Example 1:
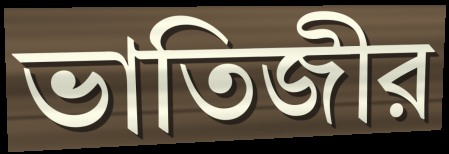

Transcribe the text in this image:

ভাতিজীর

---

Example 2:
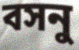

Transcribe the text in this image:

বসনু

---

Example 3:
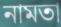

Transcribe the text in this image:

নামতা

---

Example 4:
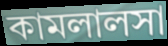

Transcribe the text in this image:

কামলালসা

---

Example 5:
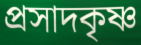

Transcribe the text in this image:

প্রসাদকৃষ্ণ